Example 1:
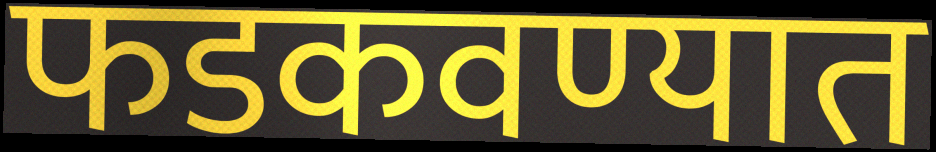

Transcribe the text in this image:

फडकवण्यात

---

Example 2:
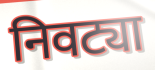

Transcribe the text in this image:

निवट्या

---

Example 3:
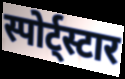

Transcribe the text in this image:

स्पोर्ट्स्टार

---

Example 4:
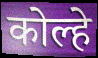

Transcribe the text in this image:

कोल्हे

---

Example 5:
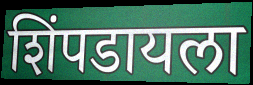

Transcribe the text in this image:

शिंपडायला